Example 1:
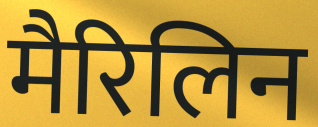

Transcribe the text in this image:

मैरिलिन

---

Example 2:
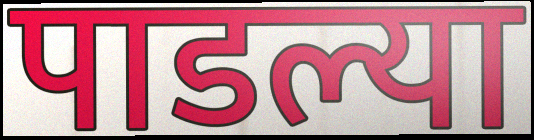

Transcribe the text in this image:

पाडल्या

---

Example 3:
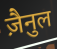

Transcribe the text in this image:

ज़ैनुल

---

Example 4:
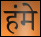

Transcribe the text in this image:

हंमे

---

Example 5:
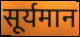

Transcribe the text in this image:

सूर्यमान